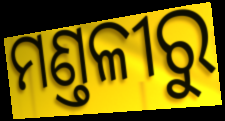
ମଣ୍ତଳୀରୁ